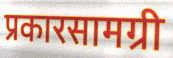
प्रकारसामग्री